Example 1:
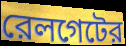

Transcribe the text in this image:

রেলগেটের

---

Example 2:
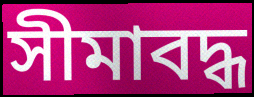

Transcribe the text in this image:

সীমাবদ্ধ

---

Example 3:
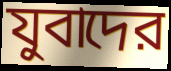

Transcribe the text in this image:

যুবাদের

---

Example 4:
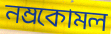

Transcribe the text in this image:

নম্রকোমল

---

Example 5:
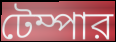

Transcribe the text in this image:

টেম্পার